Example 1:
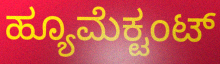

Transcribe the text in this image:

ಹ್ಯೂಮೆಕ್ಟಂಟ್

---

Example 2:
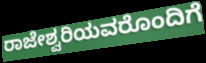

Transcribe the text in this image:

ರಾಜೇಶ್ವರಿಯವರೊಂದಿಗೆ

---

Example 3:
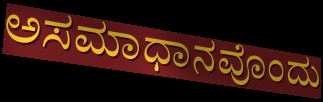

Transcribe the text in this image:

ಅಸಮಾಧಾನವೊಂದು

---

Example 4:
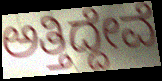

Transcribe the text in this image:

ಅತ್ತಿದ್ದೇವೆ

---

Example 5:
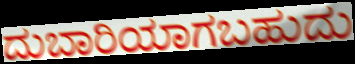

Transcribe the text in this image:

ದುಬಾರಿಯಾಗಬಹುದು